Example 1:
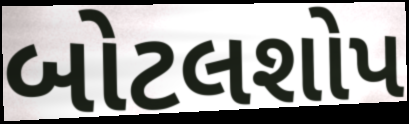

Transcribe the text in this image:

બોટલશોપ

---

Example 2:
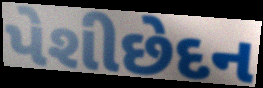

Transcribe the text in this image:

પેશીછેદન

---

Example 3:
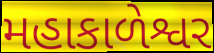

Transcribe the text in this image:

મહાકાળેશ્વર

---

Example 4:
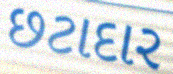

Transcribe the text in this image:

છટાદાર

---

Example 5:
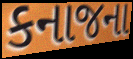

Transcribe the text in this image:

કનાજના